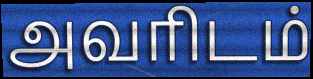
அவரிடம்